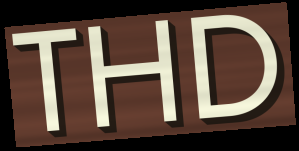
THD